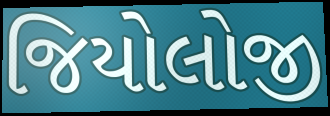
જિયોલોજી